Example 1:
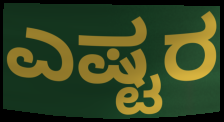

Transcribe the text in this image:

ಎಷ್ಟರ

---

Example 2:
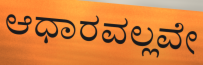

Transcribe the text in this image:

ಆಧಾರವಲ್ಲವೇ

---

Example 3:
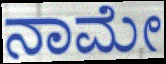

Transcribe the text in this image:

ನಾಮೇ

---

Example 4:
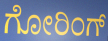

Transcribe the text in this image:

ಗೋರಿಂಗ್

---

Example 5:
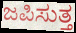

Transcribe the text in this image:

ಜಪಿಸುತ್ತ